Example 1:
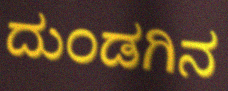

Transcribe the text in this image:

ದುಂಡಗಿನ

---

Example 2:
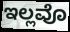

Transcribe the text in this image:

ಇಲ್ಲವೊ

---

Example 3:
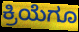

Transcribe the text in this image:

ಕ್ರಿಯೆಗೂ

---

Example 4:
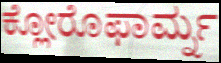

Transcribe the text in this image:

ಕ್ಲೋರೊಫಾರ್ಮ್ನ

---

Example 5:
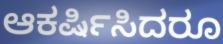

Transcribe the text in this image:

ಆಕರ್ಷಿಸಿದರೂ